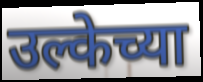
उल्केच्या